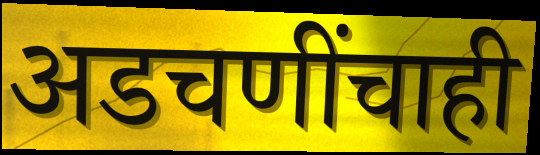
अडचणींचाही